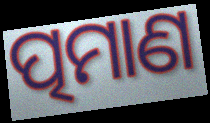
ତ୍ପମାଣ